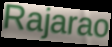
Rajarao